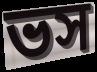
ভস